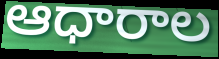
ఆధారాల